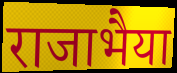
राजाभैया